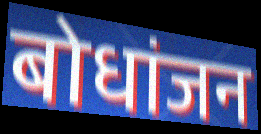
बोधांजन